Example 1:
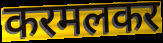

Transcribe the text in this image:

करमलकर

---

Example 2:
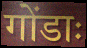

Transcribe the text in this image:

गोंडाः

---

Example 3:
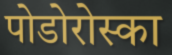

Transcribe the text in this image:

पोडोरोस्का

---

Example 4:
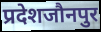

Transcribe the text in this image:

प्रदेशजौनपुर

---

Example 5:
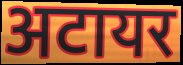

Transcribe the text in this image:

अटायर